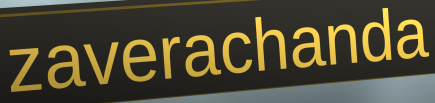
zaverachanda